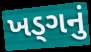
ખડ્ગનું